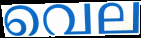
വെല